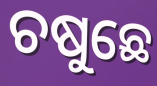
ଚଷୁଛେ